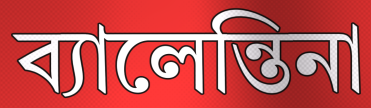
ব্যালেন্তিনা